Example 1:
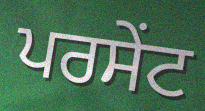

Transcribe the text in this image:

ਪਰਸੇੰਟ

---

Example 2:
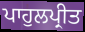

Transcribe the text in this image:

ਪਾਹੁਲਪ੍ਰੀਤ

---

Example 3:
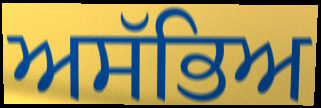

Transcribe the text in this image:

ਅਸੱਭਿਅ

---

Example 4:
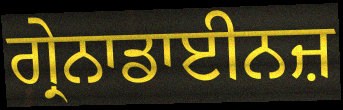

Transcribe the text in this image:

ਗ੍ਰੇਨਾਡਾਈਨਜ਼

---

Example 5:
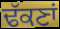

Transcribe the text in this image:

ਢੱਕਣਾਂ